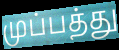
முப்பத்து